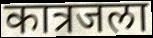
कात्रजला